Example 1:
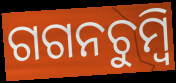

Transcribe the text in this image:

ଗଗନଚୁମ୍ବି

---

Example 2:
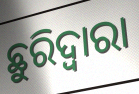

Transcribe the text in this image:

ଛୁରିଦ୍ୱାରା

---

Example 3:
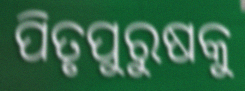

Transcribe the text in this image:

ପିତୃପୁରୁଷକୁ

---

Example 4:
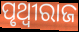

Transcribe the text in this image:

ପୃଥ୍ବୀରାଜ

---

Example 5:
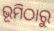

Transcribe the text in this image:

ଭୂମିଠାରୁ